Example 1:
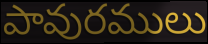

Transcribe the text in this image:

పావురములు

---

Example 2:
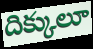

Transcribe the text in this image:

దిక్కులూ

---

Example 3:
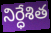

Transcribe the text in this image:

నిర్ధేశిత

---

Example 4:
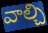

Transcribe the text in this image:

వాల్చి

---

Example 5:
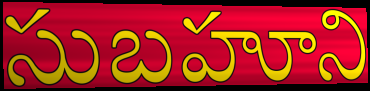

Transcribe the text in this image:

సుబహూని